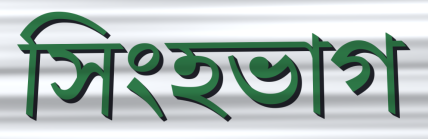
সিংহভাগ